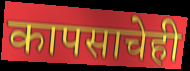
कापसाचेही